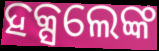
ହକ୍ସଲେଙ୍କ